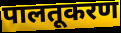
पालतूकरण